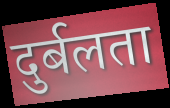
दुर्बलता